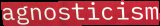
agnosticism